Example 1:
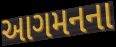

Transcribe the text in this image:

આગમનના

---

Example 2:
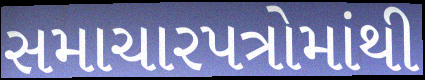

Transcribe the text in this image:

સમાચારપત્રોમાંથી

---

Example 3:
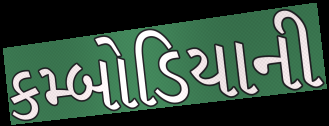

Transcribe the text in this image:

કમ્બોડિયાની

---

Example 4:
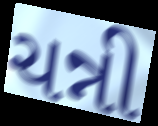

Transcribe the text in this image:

ચન્ની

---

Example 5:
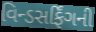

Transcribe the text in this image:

વિન્ડસર્ફિંગની